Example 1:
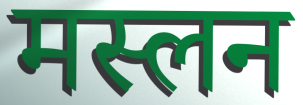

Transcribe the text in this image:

मस्लन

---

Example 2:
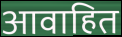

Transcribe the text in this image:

आवाहित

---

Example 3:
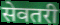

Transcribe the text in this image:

सेवतरी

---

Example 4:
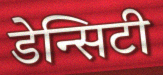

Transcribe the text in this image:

डेन्सिटी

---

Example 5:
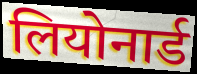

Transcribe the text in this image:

लियोनार्ड